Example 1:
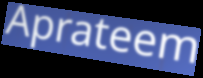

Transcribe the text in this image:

Aprateem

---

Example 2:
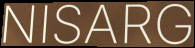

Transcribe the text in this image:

NISARG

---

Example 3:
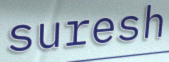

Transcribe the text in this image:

suresh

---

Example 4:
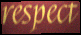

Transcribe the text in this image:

respect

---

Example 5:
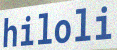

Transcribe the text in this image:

hiloli